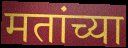
मतांच्या